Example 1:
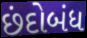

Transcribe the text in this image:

છંદોબંધ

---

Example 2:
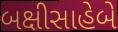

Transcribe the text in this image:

બક્ષીસાહેબે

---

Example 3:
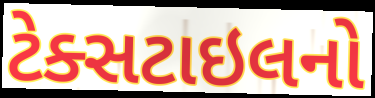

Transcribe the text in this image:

ટેક્સટાઇલનો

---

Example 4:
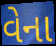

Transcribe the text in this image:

વેના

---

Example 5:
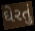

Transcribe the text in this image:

ઘેરતું